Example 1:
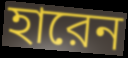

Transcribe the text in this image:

হারেন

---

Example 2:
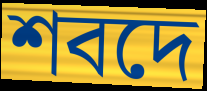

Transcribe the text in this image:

শবদে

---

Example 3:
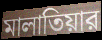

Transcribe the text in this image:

মালাতিয়ার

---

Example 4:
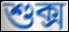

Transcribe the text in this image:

শুক্স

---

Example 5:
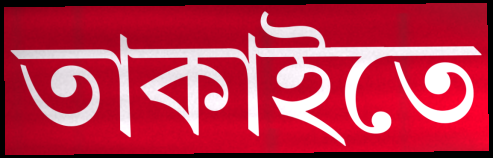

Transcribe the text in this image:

তাকাইতে